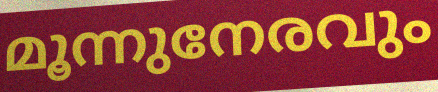
മൂന്നുനേരവും